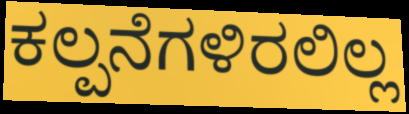
ಕಲ್ಪನೆಗಳಿರಲಿಲ್ಲ